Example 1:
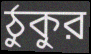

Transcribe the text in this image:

ঠুকুর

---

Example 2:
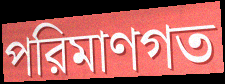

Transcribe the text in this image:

পরিমাণগত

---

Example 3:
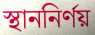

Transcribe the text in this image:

স্থাননির্ণয়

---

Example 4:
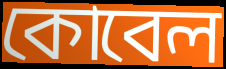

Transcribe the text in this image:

কোবেল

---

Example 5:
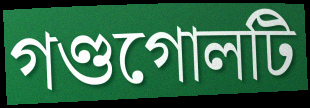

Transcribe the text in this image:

গণ্ডগোলটি